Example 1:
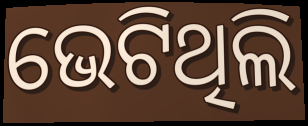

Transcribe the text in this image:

ଭେଟିଥିଲି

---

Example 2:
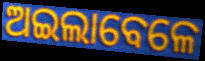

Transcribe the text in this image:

ଅଇଲାବେଳେ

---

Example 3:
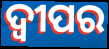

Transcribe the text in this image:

ଦ୍ଵୀପର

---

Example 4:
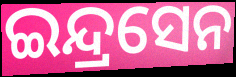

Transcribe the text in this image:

ଇନ୍ଦ୍ରସେନ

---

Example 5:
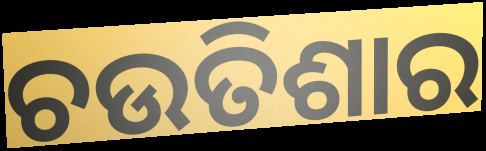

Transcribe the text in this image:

ଚଉତିଶାର